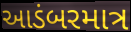
આડંબરમાત્ર